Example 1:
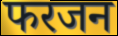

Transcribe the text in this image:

फरजन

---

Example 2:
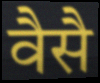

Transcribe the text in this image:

वैसै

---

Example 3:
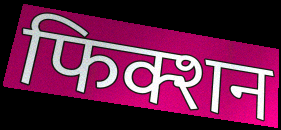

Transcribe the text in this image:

फिक्शन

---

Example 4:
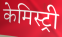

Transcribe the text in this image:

केमिस्ट्री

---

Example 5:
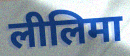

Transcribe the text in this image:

लीलिमा